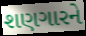
શણગારને